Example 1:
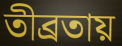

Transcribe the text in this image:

তীব্রতায়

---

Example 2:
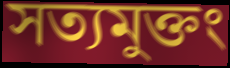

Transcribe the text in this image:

সত্যমুক্তং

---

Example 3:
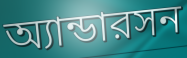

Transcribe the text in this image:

অ্যান্ডারসন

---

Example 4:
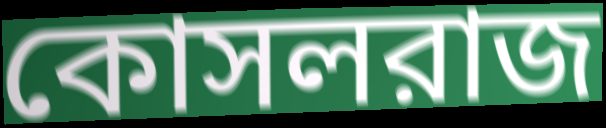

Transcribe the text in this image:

কোসলরাজ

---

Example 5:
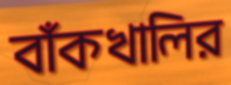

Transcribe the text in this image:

বাঁকখালির